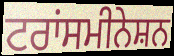
ਟਰਾਂਸਮੀਨੇਸ਼ਨ